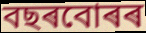
বছৰবোৰৰ